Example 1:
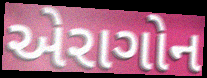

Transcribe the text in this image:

એરાગોન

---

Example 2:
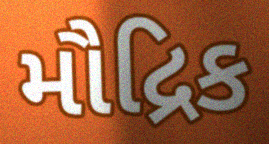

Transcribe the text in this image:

મૌદ્રિક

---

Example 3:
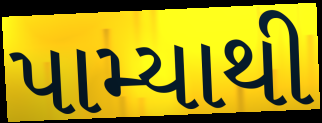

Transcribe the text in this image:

પામ્યાથી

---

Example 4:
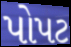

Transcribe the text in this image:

પોપટ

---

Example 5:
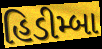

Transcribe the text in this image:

હિડીમ્બા